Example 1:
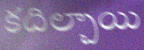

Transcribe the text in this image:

కదిల్చాయి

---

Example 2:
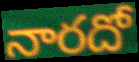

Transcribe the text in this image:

నారదో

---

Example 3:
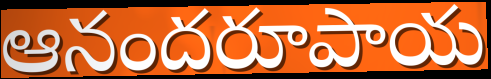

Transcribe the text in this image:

ఆనందరూపాయ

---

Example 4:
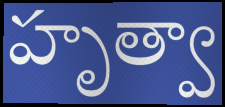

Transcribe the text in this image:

హృత్వా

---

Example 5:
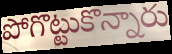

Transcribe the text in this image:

పోగొట్టుకొన్నారు